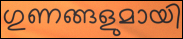
ഗുണങ്ങളുമായി